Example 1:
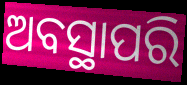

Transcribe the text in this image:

ଅବସ୍ଥାପରି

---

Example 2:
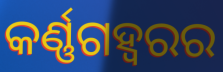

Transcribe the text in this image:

କର୍ଣ୍ଣଗହ୍ୱରର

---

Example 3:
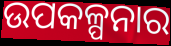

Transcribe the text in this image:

ଉପକଳ୍ପନାର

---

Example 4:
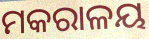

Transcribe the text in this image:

ମକରାଳୟ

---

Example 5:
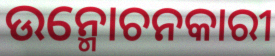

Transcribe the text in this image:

ଉନ୍ମୋଚନକାରୀ